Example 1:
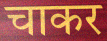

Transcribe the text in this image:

चाकर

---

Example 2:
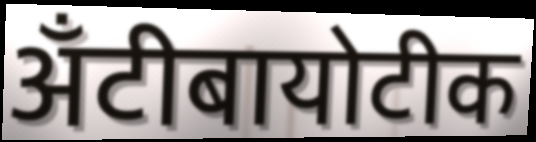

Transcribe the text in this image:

अँटीबायोटीक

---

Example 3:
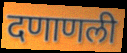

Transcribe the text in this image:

दणाणली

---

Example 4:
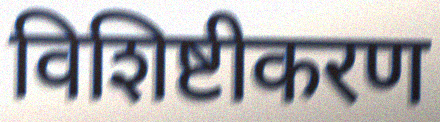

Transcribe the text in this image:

विशिष्टीकरण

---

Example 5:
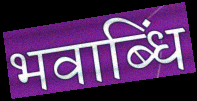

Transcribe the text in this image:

भवाब्धिं